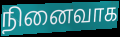
நினைவாக